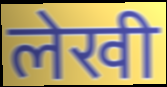
लेखी